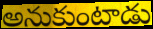
అనుకుంటాడు